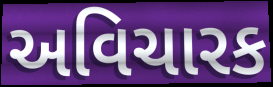
અવિચારક